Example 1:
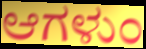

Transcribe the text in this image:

ಆಗಳುಂ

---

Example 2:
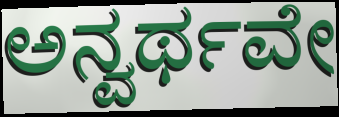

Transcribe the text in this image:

ಅನ್ವರ್ಥವೇ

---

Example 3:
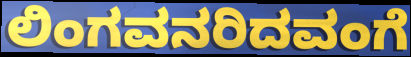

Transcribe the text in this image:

ಲಿಂಗವನರಿದವಂಗೆ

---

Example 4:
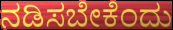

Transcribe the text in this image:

ನಡಿಸಬೇಕೆಂದು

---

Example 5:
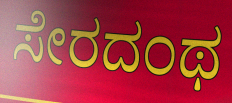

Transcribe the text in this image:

ಸೇರದಂಥ